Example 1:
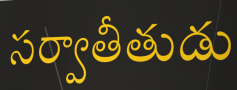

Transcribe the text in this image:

సర్వాతీతుడు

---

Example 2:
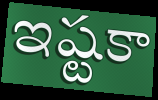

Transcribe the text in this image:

ఇష్టకా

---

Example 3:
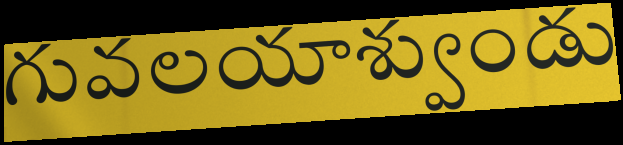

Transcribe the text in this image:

గువలయాశ్వుండు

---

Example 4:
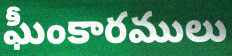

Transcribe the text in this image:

ఘీంకారములు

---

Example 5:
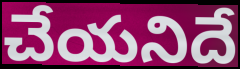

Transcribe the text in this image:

చేయనిదే